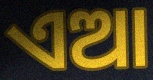
ଏଆ